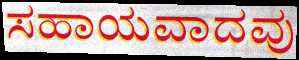
ಸಹಾಯವಾದವು